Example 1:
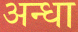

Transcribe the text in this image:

अन्धा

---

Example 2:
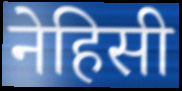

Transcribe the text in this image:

नेहिसी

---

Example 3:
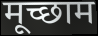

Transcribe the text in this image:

मूच्छाम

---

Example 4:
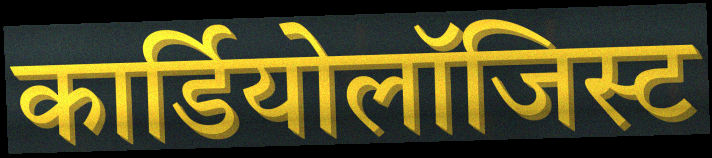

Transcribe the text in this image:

कार्डियोलॉजिस्ट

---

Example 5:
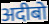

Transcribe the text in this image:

अदीबो